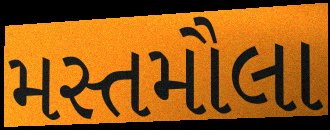
મસ્તમૌલા